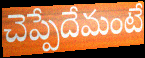
చెప్పేదేమంటే